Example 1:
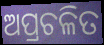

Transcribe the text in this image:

ଅପ୍ରଚଳିତ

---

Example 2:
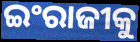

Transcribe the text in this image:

ଇଂରାଜୀକୁ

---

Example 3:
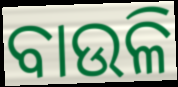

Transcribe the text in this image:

ବାଉଳି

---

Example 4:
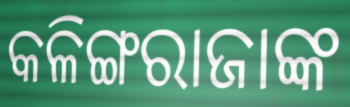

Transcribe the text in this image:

କଳିଙ୍ଗରାଜାଙ୍କ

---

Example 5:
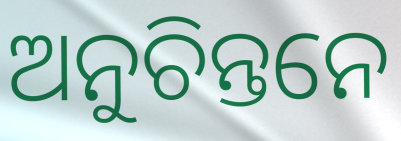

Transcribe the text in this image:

ଅନୁଚିନ୍ତନେ